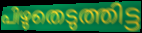
പിഴുതെടുത്തിട്ട